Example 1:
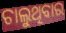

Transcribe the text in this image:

ଚାଲୁଥିବାର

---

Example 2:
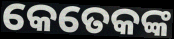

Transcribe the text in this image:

କେତେକଙ୍କ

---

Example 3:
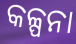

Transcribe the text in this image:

କଳ୍ପନା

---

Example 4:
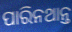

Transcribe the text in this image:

ପାରିନଥାନ୍ତ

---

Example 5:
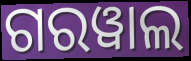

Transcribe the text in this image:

ଗରୱାଲ